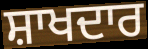
ਸ਼ਾਖਦਾਰ